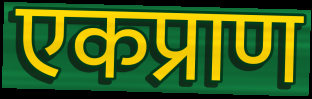
एकप्राण